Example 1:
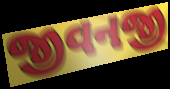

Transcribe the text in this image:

જીવનજી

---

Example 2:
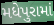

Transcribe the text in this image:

મધેપુરામાં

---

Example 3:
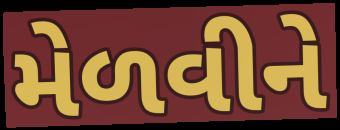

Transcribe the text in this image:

મેળવીને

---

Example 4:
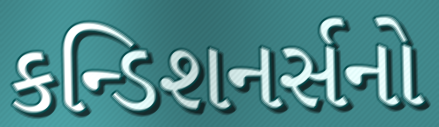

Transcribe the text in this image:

કન્ડિશનર્સનો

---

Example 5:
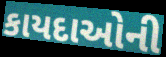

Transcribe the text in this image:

કાયદાઓની